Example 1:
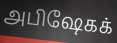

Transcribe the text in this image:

அபிஷேகக்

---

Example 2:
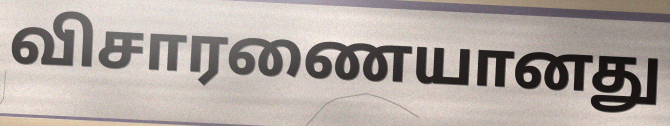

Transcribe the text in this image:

விசாரணையானது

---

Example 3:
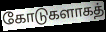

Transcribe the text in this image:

கோடுகளாகத்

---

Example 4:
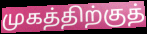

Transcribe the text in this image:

முகத்திற்குத்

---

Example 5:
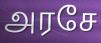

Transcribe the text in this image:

அரசே